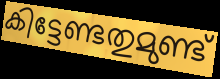
കിട്ടേണ്ടതുമുണ്ട്